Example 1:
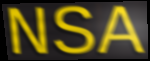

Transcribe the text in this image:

NSA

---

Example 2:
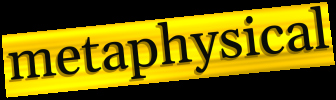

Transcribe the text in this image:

metaphysical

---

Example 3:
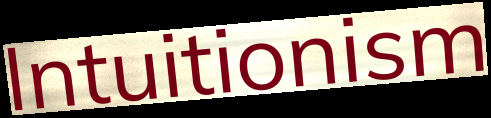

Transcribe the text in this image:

Intuitionism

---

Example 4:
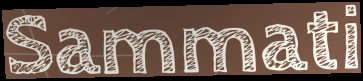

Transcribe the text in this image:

Sammati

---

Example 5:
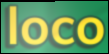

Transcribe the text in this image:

loco